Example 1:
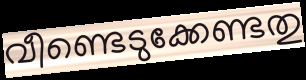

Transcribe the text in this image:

വീണ്ടെടുക്കേണ്ടതു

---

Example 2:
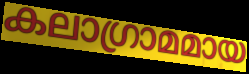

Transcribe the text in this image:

കലാഗ്രാമമായ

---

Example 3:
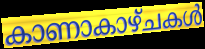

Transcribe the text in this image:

കാണാകാഴ്ചകൾ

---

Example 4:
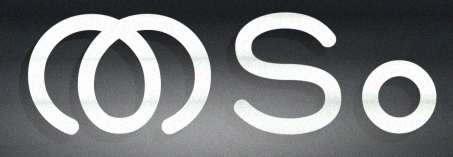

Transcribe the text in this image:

തടം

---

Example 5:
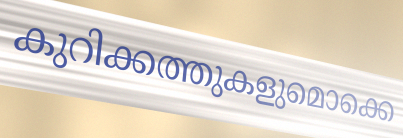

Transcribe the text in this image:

കുറിക്കത്തുകളുമൊക്കെ